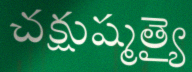
చక్షుష్మత్యై